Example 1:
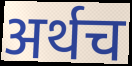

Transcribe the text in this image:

अर्थच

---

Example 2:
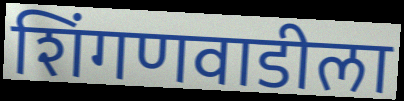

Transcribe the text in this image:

शिंगणवाडीला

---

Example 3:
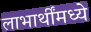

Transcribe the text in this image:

लाभार्थींमध्ये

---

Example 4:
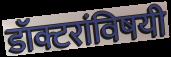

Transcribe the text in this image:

डॉक्टरांविषयी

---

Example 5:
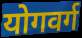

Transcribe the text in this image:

योगवर्ग